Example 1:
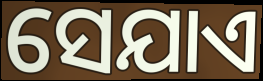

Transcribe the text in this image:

ସେଯାଏ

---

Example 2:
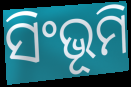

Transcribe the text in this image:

ସିଂଭୂମି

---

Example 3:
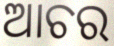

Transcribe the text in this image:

ଆଚର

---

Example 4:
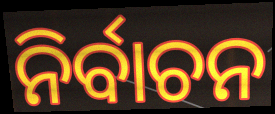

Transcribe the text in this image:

ନିର୍ବାଚନ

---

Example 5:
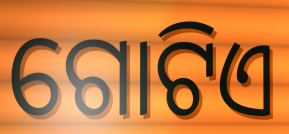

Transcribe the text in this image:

ଗୋଟିଏ